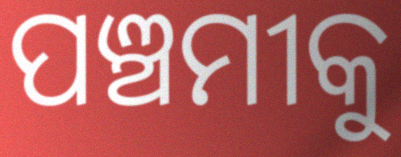
ପଞ୍ଚମୀକୁ